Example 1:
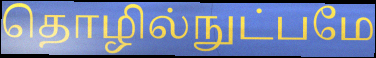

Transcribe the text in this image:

தொழில்நுட்பமே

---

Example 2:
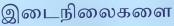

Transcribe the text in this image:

இடைநிலைகளை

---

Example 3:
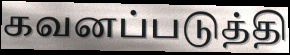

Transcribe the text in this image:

கவனப்படுத்தி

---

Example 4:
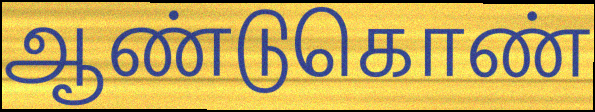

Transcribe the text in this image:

ஆண்டுகொண்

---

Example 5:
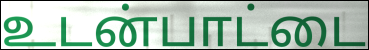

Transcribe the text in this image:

உடன்பாட்டை